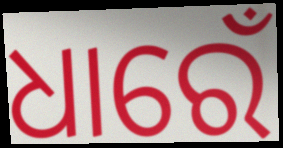
ଧାରେଁ